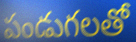
పండుగలతో